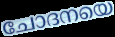
ചോദനയെ